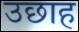
उछाह